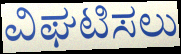
ವಿಘಟಿಸಲು